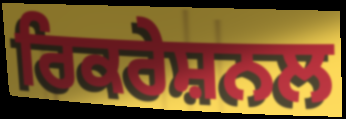
ਰਿਕਰੇਸ਼ਨਲ